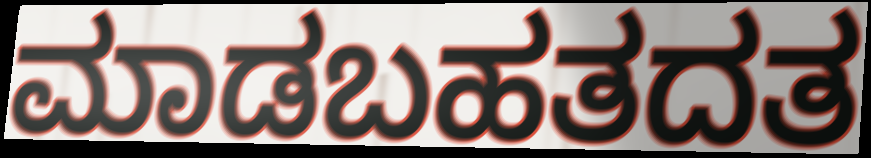
ಮಾಡಬಹತದತ